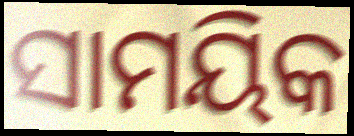
ସାମୟିକ